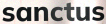
sanctus